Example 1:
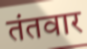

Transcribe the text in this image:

तंतवार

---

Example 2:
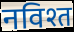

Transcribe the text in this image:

नविश्त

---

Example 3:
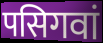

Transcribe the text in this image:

पसिगवां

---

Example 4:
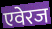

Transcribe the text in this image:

एवेरज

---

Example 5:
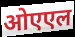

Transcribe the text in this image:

ओएएल